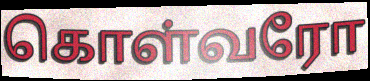
கொள்வரோ